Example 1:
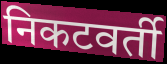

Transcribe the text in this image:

निकटवर्ती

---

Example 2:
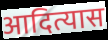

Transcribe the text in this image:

आदित्यास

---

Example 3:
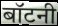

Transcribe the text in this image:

बॉटनी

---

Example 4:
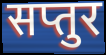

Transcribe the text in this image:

सप्तुर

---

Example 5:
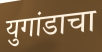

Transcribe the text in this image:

युगांडाचा